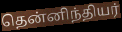
தென்னிந்தியர்